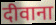
दीवाना